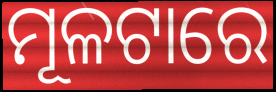
ମୂଳଟାରେ